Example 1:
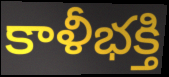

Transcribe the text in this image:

కాళీభక్తి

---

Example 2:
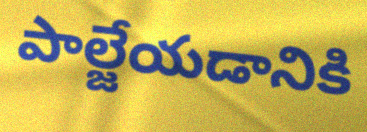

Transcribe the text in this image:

పాల్జేయడానికి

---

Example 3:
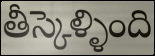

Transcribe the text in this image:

తీస్కెళ్ళింది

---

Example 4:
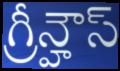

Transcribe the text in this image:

గ్రీన్హౌస్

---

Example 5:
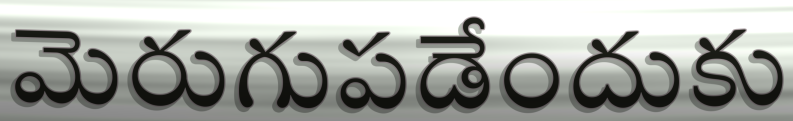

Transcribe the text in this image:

మెరుగుపడేందుకు